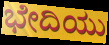
ಭೇದಿಯು